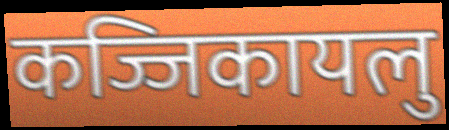
कज्जिकायलु